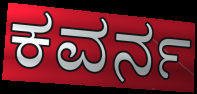
ಕವರ್ನ